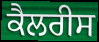
ਕੈਲਰੀਸ